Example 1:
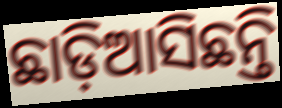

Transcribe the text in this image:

ଛାଡ଼ିଆସିଛନ୍ତି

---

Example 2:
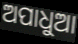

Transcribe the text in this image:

ଅପାଧୁଆ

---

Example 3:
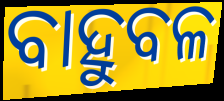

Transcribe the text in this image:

ବାହୁବଳ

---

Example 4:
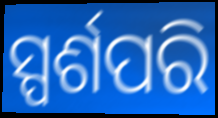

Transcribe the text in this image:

ସ୍ପର୍ଶପରି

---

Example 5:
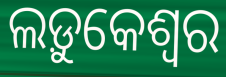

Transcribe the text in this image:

ଲଡ଼ୁକେଶ୍ୱର